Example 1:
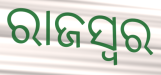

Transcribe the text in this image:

ରାଜସ୍ୱର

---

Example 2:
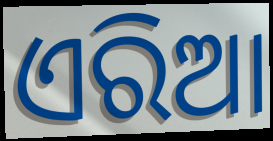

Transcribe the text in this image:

ଏରିଆ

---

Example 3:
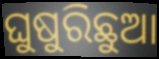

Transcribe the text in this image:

ଘୁଷୁରିଛୁଆ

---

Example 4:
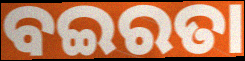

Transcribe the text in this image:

ବଇରତା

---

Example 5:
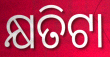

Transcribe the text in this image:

କ୍ଷତିଟା